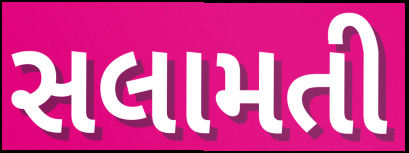
સલામતી